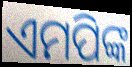
ଏମପିଙ୍କ